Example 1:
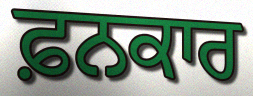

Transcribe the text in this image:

ਫ਼ਨਕਾਰ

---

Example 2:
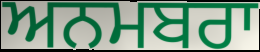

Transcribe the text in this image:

ਅਨਮਬਰਾ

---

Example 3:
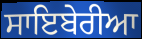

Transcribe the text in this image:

ਸਾਇਬੇਰੀਆ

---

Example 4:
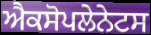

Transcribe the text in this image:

ਐਕਸੋਪਲੇਨੇਟਸ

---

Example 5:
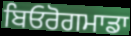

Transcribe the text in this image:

ਬਿਓਰੋਗਮਾਡਾ